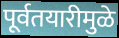
पूर्वतयारीमुळे